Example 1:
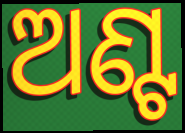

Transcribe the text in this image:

ଅଣ୍ଟ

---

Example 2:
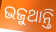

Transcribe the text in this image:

ଭଜୁଥାନ୍ତି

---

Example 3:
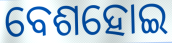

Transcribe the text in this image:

ବେଶହୋଇ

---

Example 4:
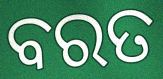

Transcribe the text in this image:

ବରତ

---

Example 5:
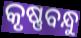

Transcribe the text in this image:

କୃଷ୍ଣବନ୍ଧୁ